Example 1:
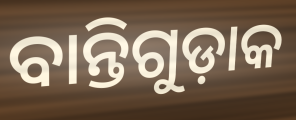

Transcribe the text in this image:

ବାନ୍ତିଗୁଡ଼ାକ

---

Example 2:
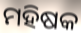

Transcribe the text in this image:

ମହିଷକ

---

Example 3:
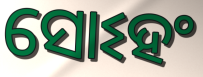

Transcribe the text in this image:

ସୋଽହଂ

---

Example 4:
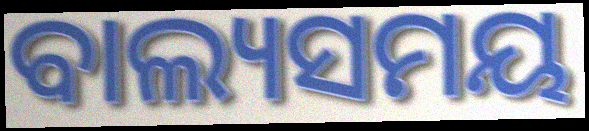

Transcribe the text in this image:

ବାଲ୍ୟସମୟ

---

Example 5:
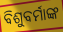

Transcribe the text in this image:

ବିଶୁବର୍ମାଙ୍କ